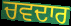
ਚਵਦਾਰ